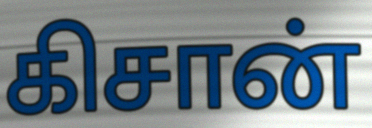
கிசான்